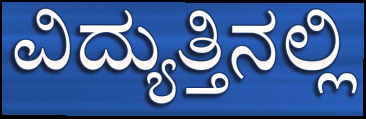
ವಿದ್ಯುತ್ತಿನಲ್ಲಿ